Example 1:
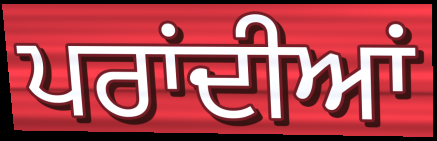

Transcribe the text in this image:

ਪਰਾਂਦੀਆਂ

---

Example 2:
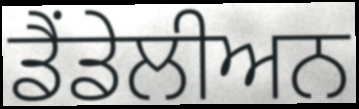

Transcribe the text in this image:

ਡੈਂਡੇਲੀਅਨ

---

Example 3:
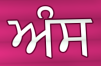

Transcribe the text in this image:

ਅੰਸ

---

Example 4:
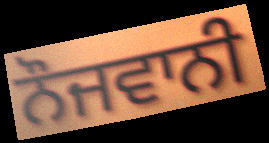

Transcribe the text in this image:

ਨੌਜਵਾਨੀ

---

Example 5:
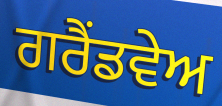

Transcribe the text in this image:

ਗਰੈਂਡਵੇਅ